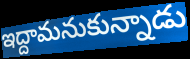
ఇద్దామనుకున్నాడు